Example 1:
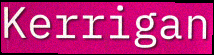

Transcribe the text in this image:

Kerrigan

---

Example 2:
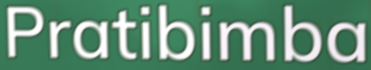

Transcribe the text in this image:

Pratibimba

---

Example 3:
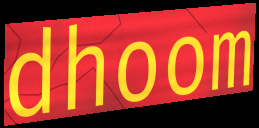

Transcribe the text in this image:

dhoom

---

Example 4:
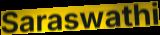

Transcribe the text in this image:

Saraswathi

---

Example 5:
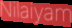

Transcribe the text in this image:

Nilaiyam